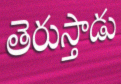
తెరుస్తాడు